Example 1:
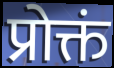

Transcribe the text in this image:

प्रोक्तं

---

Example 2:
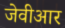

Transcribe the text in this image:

जेवीआर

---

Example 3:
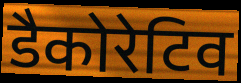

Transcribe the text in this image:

डैकोरेटिव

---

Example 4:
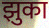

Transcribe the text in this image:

झुका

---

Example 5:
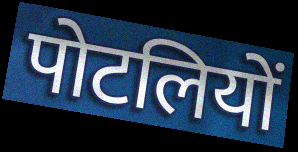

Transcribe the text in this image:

पोटलियों